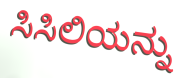
ಸಿಸಿಲಿಯನ್ನು